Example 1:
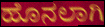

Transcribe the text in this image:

ಹೊನಲಾಗಿ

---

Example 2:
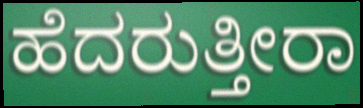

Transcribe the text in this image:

ಹೆದರುತ್ತೀರಾ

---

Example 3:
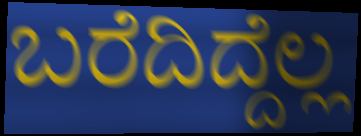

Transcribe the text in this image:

ಬರೆದಿದ್ದೆಲ್ಲ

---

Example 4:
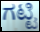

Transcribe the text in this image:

ಗಟ್ಟಿ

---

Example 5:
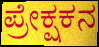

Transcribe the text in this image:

ಪ್ರೇಕ್ಷಕನ